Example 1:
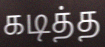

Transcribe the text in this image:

கடித்த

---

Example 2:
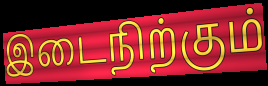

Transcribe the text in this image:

இடைநிற்கும்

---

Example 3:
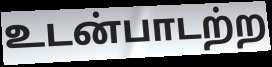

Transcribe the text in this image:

உடன்பாடற்ற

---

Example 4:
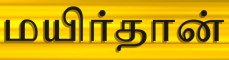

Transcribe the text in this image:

மயிர்தான்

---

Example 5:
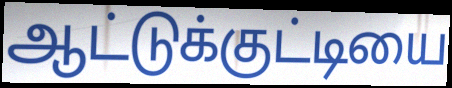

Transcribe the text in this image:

ஆட்டுக்குட்டியை